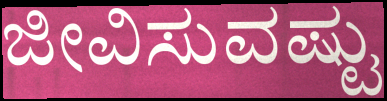
ಜೀವಿಸುವಷ್ಟು